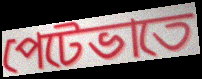
পেটেভাতে